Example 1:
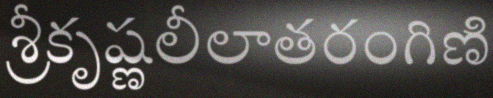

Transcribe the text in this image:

శ్రీకృష్ణలీలాతరంగిణి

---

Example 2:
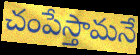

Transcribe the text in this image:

చంపేస్తామనే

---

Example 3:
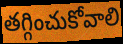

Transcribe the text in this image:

తగ్గించుకోవాలి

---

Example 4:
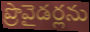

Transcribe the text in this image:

ప్రొవైడర్లను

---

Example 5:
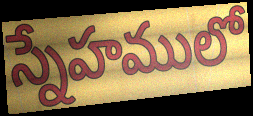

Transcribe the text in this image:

స్నేహములో